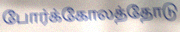
போர்க்கோலத்தோடு